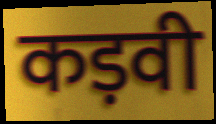
कड़वी